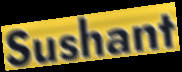
Sushant